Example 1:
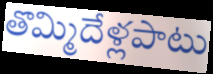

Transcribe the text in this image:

తొమ్మిదేళ్లపాటు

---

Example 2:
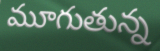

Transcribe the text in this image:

మూగుతున్న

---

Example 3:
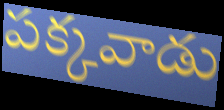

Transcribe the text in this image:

పక్కవాడు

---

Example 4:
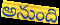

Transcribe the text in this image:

అనుంది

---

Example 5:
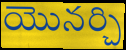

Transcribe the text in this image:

యొనర్చి